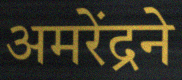
अमरेंद्रने